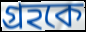
গ্রহকে